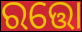
ରତ୍ତୋ